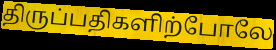
திருப்பதிகளிற்போலே